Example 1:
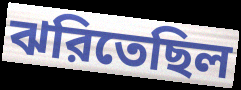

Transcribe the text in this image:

ঝরিতেছিল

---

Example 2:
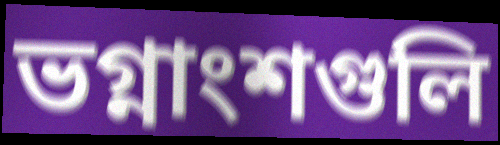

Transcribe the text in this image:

ভগ্নাংশগুলি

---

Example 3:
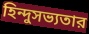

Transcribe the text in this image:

হিন্দুসভ্যতার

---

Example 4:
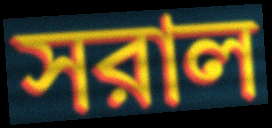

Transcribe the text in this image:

সরাল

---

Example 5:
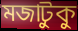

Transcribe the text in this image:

মজাটুকু